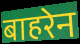
बाहरेन